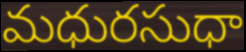
మధురసుధా